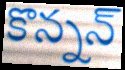
కొన్నన్